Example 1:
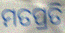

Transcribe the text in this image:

ମତପ୍ରତି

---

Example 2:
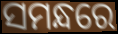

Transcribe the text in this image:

ସମନ୍ଧରେ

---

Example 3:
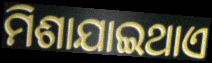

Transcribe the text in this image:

ମିଶାଯାଇଥାଏ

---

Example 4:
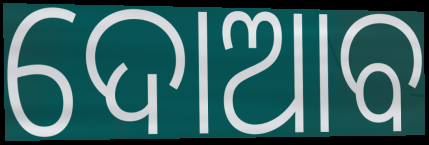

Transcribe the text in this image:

ଦୋଆବ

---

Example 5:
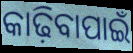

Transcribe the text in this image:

କାଢ଼ିବାପାଇଁ